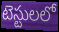
టెస్టులలో